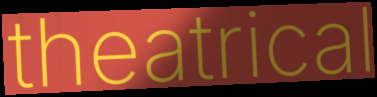
theatrical